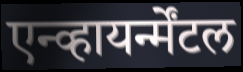
एन्व्हायर्न्मेंटल